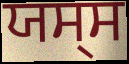
ਯਸ੍ਸ